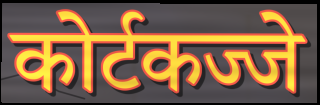
कोर्टकज्जे